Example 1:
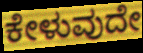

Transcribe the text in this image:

ಕೇಳುವುದೇ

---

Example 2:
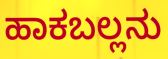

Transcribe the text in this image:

ಹಾಕಬಲ್ಲನು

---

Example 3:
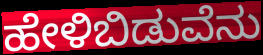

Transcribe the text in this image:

ಹೇಳಿಬಿಡುವೆನು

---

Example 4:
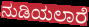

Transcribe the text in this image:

ನುಡಿಯಲಾರೆ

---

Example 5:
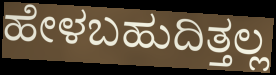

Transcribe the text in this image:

ಹೇಳಬಹುದಿತ್ತಲ್ಲ